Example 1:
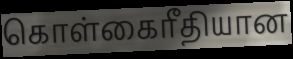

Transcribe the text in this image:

கொள்கைரீதியான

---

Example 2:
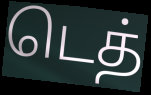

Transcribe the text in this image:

டெத்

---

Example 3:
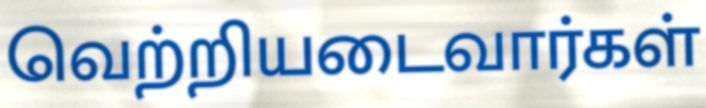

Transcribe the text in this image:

வெற்றியடைவார்கள்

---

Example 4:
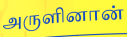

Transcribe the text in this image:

அருளினான்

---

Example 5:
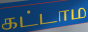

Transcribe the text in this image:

கட்டாம